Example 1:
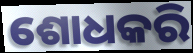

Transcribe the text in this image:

ଶୋଧକରି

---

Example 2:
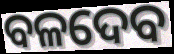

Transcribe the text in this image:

ବଳଦେବ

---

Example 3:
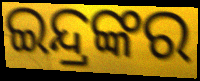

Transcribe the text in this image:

ଇନ୍ଦ୍ରଙ୍କର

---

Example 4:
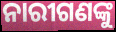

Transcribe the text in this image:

ନାରୀଗଣଙ୍କୁ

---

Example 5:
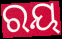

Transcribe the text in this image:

ରୟ